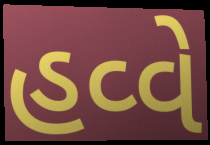
હવ્વે